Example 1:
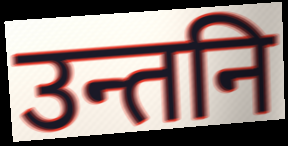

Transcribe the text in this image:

उन्तनि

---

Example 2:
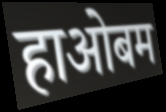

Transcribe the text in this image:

हाओबम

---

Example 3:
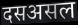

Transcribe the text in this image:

दसअसल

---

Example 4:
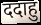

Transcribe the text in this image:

ददाहु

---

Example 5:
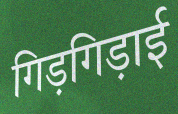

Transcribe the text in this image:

गिड़गिड़ाई